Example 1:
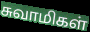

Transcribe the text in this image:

சுவாமிகள்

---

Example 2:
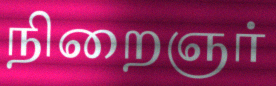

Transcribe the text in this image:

நிறைஞர்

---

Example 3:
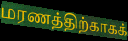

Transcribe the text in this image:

மரணத்திற்காகக்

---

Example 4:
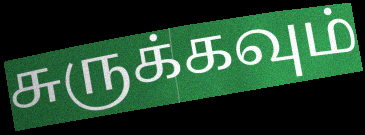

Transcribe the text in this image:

சுருக்கவும்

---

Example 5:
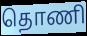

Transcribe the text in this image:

தொணி